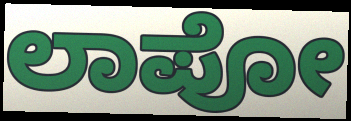
ಲಾಪೋ